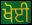
ਖੋਈ